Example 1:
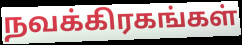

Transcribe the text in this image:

நவக்கிரகங்கள்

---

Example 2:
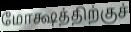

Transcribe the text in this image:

மோக்ஷத்திற்குச்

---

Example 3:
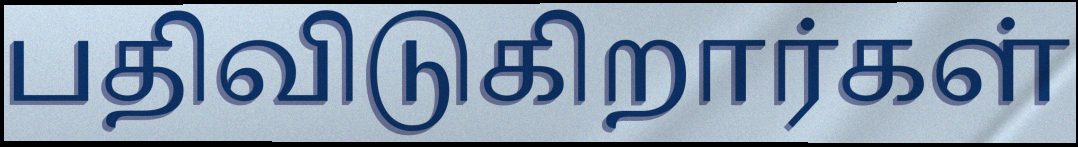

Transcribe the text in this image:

பதிவிடுகிறார்கள்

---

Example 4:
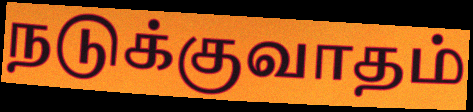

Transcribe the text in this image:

நடுக்குவாதம்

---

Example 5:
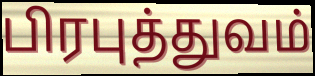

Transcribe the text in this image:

பிரபுத்துவம்